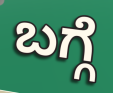
ಬಗ್ಗೆ